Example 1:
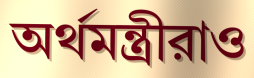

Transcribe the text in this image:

অর্থমন্ত্রীরাও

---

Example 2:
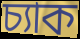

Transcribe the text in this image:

চ্যাক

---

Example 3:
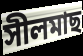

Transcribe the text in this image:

সীলমাছ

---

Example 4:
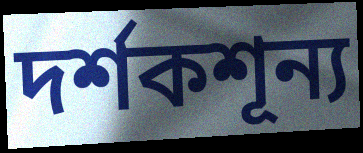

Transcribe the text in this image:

দর্শকশূন্য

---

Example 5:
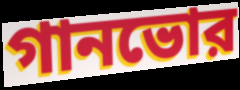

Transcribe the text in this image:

গানভোর